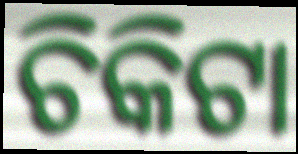
ଚିକିଟା